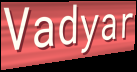
Vadyar